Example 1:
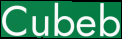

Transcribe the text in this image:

Cubeb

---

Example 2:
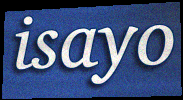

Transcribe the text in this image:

isayo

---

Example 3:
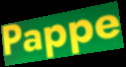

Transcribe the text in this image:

Pappe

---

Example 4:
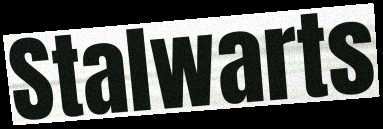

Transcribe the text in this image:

Stalwarts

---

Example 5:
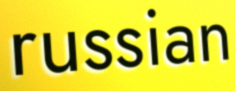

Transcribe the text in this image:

russian